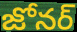
జోనర్